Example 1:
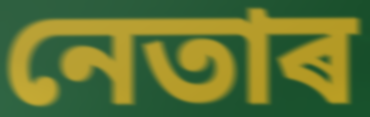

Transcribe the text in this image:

নেতাৰ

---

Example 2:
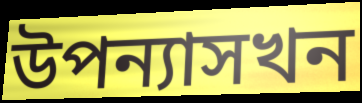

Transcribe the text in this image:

উপন্যাসখন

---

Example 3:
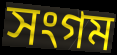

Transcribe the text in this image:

সংগম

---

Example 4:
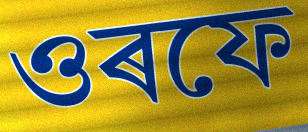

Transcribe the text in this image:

ওৰফে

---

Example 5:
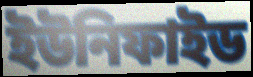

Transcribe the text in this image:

ইউনিফাইড